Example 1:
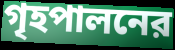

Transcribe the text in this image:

গৃহপালনের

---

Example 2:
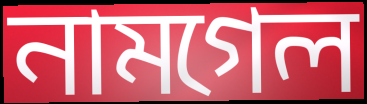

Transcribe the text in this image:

নামগেল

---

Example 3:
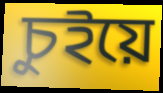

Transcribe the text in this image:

চুইয়ে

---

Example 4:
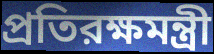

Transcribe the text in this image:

প্রতিরক্ষমন্ত্রী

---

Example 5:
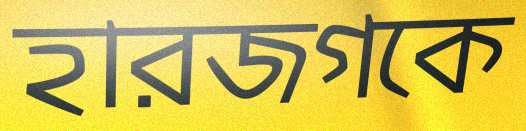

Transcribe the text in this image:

হারজগকে